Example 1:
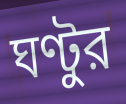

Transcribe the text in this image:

ঘণ্টুর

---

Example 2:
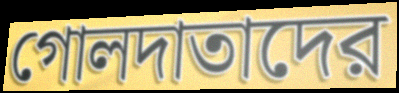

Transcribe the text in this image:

গোলদাতাদের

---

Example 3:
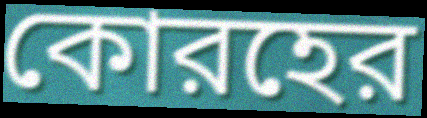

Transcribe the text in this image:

কোরহের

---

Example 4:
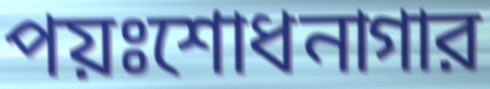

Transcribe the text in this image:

পয়ঃশোধনাগার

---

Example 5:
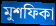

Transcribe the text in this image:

মুশফিকা